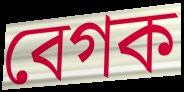
বেগক